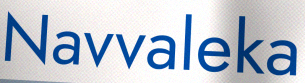
Navvaleka